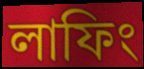
লাফিং